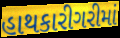
હાથકારીગરીમાં